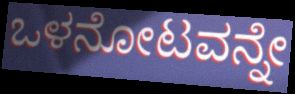
ಒಳನೋಟವನ್ನೇ